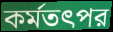
কর্মতৎপর